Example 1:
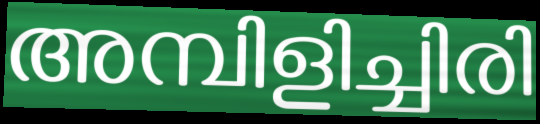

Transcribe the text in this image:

അമ്പിളിച്ചിരി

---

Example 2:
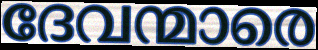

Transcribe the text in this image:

ദേവന്മാരെ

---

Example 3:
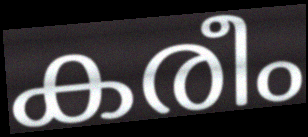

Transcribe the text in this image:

കരീം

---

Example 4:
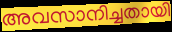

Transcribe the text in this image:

അവസാനിച്ചതായി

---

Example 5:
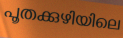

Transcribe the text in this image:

പൂതക്കുഴിയിലെ